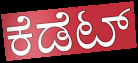
ಕೆಡೆಟ್